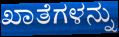
ಖಾತೆಗಳನ್ನು